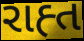
રાહ્ત